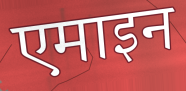
एमाइन